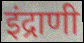
इंद्राणी